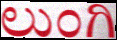
ಲುಂಗಿ